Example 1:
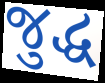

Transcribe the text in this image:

જુદ્ધ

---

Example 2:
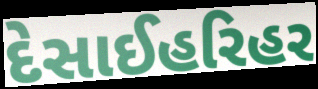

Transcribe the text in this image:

દેસાઈહરિહર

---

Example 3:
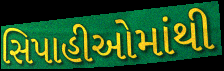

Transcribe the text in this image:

સિપાહીઓમાંથી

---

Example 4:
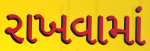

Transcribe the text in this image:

રાખવામાં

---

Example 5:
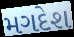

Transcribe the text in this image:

મગદેશ